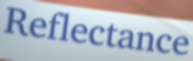
Reflectance